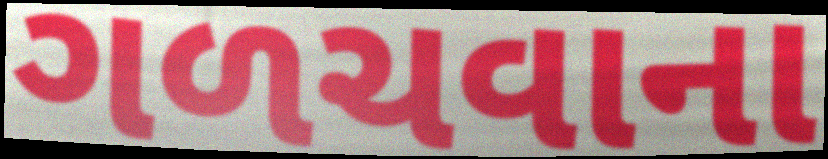
ગળચવાના